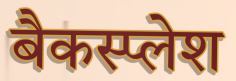
बैकस्प्लेश